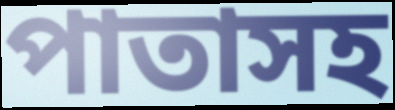
পাতাসহ